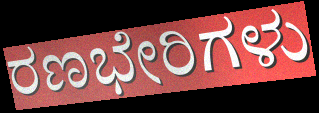
ರಣಭೇರಿಗಳು